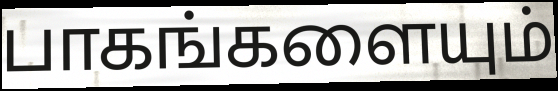
பாகங்களையும்